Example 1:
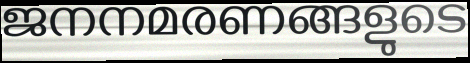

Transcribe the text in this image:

ജനനമരണങ്ങളുടെ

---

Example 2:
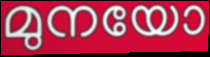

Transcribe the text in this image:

മുനയോ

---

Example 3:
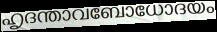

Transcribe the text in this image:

ഹൃദന്താവബോധോദയം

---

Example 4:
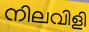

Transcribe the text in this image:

നിലവിളി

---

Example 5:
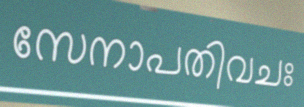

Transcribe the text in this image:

സേനാപതിവചഃ